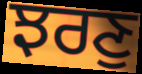
ਝਰਣੁ